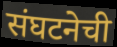
संघटनेची